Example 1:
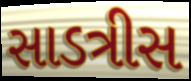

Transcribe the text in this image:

સાડત્રીસ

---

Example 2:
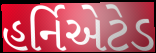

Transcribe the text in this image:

હર્નિએટેડ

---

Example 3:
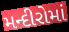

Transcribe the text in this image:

મન્દીરોમાં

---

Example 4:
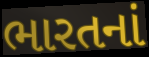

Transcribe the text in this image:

ભારતનાં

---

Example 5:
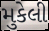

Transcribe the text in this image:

મુકેલી